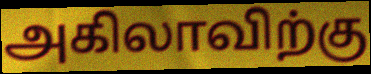
அகிலாவிற்கு